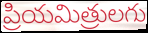
ప్రియమిత్రులగు